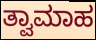
ತ್ವಾಮಾಹ